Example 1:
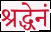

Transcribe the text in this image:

श्रद्धेनं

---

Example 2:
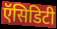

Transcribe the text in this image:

ऍसिडिटी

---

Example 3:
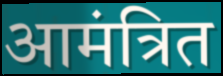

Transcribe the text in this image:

आमंत्रित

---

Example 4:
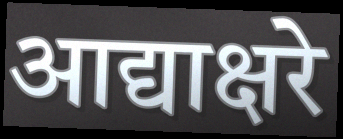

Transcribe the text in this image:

आद्याक्षरे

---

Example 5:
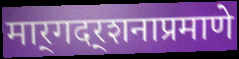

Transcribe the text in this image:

मार्गदर्शनाप्रमाणे